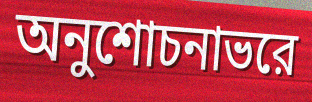
অনুশোচনাভরে